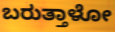
ಬರುತ್ತಾಳೋ